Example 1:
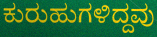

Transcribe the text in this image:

ಕುರುಹುಗಳಿದ್ದವು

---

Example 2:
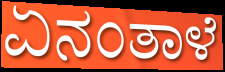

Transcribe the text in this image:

ಏನಂತಾಳೆ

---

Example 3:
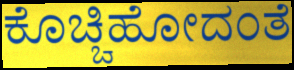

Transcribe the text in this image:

ಕೊಚ್ಚಿಹೋದಂತೆ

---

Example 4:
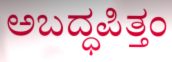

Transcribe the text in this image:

ಅಬದ್ಧಪಿತ್ತಂ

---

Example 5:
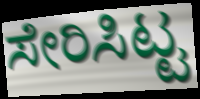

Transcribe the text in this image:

ಸೇರಿಸಿಟ್ಟ